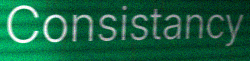
Consistancy